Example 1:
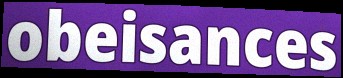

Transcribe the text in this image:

obeisances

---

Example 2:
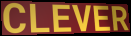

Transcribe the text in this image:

CLEVER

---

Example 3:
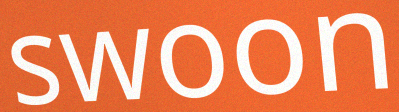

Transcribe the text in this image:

swoon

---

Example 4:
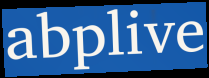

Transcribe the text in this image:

abplive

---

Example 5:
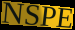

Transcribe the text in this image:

NSPE